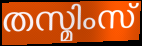
തസ്മിംസ്